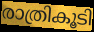
രാത്രികൂടി